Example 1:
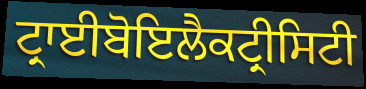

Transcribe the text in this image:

ਟ੍ਰਾਈਬੋਇਲੈਕਟ੍ਰੀਸਿਟੀ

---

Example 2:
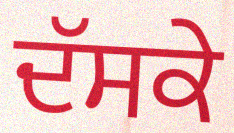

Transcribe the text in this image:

ਦੱਸਕੇ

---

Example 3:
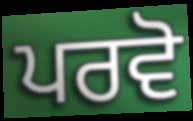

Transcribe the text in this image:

ਪਰਵੋ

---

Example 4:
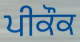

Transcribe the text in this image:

ਪੀਕੌਕ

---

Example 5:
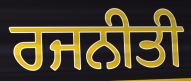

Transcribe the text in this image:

ਰਜਨੀਤੀ